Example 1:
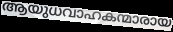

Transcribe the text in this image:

ആയുധവാഹകന്മാരായ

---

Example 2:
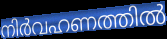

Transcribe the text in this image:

നിർവഹണത്തിൽ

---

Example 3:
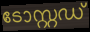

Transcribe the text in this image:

ടോസ്റ്റഡ്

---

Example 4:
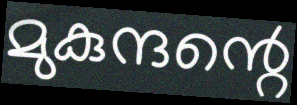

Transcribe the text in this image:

മുകുന്ദന്റെ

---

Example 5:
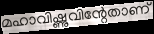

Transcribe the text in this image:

മഹാവിഷ്ണുവിന്റേതാണ്